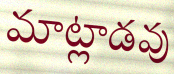
మాట్లాడవు